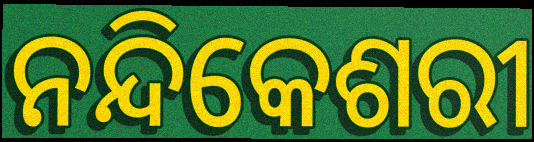
ନନ୍ଦିକେଶରୀ